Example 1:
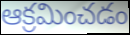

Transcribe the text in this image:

ఆక్రమించడం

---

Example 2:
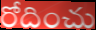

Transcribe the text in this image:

రోదించు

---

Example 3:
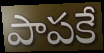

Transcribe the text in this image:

పాపకే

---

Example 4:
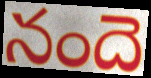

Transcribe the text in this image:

నందె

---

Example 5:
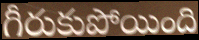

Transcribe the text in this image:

గీరుకుపోయింది